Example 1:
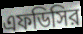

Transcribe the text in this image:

এফডিসির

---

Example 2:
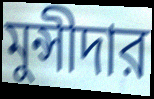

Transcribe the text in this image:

মুন্সীদার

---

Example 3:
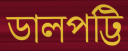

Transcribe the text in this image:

ডালপট্টি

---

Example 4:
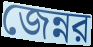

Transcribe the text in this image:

জেন্নর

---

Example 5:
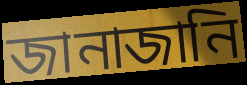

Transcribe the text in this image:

জানাজানি